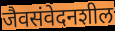
जैवसंवेदनशील